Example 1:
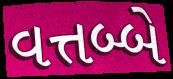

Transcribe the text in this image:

વત્તબ્બે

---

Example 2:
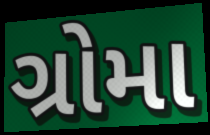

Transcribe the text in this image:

ગ્રોમા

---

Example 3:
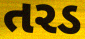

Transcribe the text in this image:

તરડ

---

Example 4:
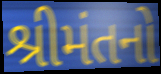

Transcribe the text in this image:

શ્રીમંતનો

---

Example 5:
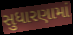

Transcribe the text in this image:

સુધારણામાં